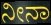
ನೀನಾ